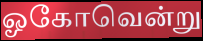
ஓகோவென்று